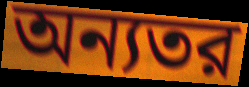
অন্যতর